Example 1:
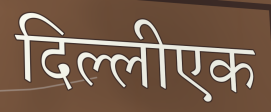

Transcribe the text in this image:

दिल्लीएक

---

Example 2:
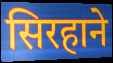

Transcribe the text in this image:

सिरहाने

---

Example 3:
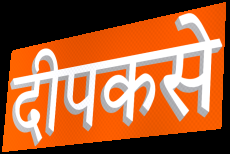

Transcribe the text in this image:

दीपकसे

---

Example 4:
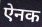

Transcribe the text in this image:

ऐनक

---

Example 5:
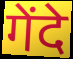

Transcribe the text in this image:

गेंदे